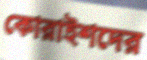
কোরাইশদের